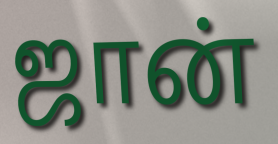
ஜான்